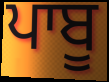
ਪਾਬੂ